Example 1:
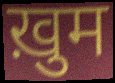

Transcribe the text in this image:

ख़ुम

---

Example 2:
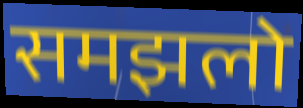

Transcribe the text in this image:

समझलो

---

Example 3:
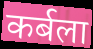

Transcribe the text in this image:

कर्बला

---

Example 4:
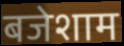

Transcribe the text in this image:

बजेशाम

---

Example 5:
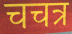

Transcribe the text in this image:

चचत्र